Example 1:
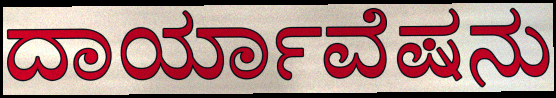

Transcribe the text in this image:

ದಾರ್ಯಾವೆಷನು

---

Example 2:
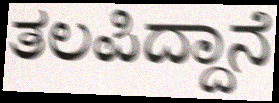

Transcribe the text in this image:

ತಲಪಿದ್ದಾನೆ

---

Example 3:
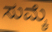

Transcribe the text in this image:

ಸುಮ್ಕೆ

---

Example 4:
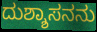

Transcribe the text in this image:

ದುಶ್ಶಾಸನನು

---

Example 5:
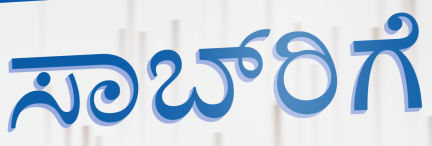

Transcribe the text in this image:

ಸಾಬ್‌ರಿಗೆ